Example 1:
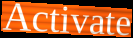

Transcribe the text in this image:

Activate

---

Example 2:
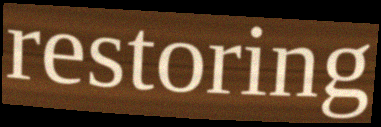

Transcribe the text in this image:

restoring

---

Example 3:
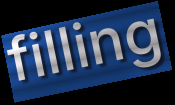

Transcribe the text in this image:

filling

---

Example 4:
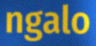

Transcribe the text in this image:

ngalo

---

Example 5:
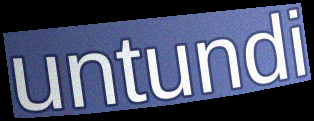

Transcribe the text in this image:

untundi